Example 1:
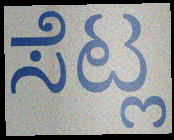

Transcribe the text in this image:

ಸೆಟ್ಲ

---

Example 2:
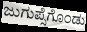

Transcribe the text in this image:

ಜುಗುಪ್ಸೆಗೊಂಡು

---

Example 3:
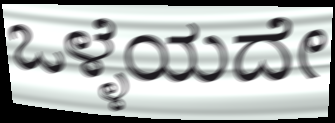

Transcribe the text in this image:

ಒಳ್ಳೆಯದೇ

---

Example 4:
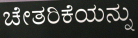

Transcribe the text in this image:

ಚೇತರಿಕೆಯನ್ನು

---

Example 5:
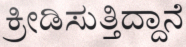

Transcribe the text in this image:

ಕ್ರೀಡಿಸುತ್ತಿದ್ದಾನೆ